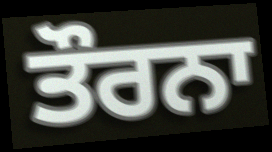
ਤੌਰਨਾ